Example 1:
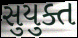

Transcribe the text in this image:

સુયુક્ત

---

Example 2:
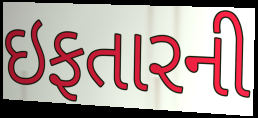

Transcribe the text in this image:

ઇફતારની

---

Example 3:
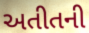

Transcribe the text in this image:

અતીતની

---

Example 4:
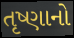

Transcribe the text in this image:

તૃષ્ણાનો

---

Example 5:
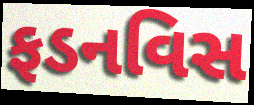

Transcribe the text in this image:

ફડનવિસ